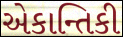
એકાન્તિકી